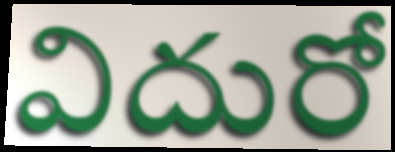
విదురో